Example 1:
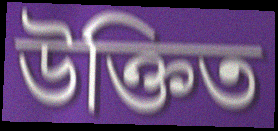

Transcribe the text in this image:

উক্তিত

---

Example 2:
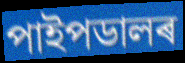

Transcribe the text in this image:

পাইপডালৰ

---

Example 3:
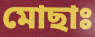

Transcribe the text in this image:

মোছাঃ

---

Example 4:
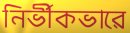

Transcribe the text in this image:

নিৰ্ভীকভাৱে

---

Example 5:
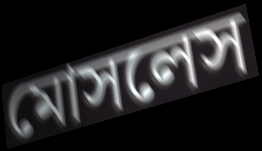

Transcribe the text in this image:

মোসলেস